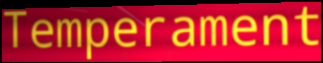
Temperament